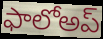
ఫాలోఅప్